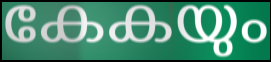
കേകയും